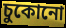
চুকোনো